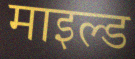
माइल्ड